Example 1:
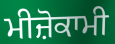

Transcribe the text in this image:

ਮੀਜ਼ੋਕਾਮੀ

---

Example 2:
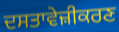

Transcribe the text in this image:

ਦਸਤਾਵੇਜ਼ੀਕਰਣ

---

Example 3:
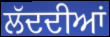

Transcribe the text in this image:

ਲੱਦਦੀਆਂ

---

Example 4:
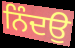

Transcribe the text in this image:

ਨਿੰਦਉ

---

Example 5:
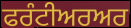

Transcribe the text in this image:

ਫਰੰਟੀਅਰਅਰ